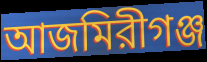
আজমিরীগঞ্জ